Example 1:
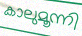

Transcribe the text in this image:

കാലുമൂന്നി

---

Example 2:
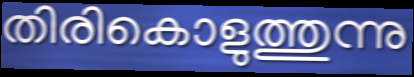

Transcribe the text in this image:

തിരികൊളുത്തുന്നു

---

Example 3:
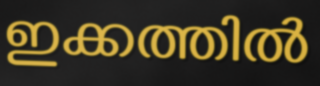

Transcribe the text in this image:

ഇക്കത്തിൽ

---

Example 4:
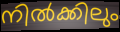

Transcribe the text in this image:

നിൽക്കിലും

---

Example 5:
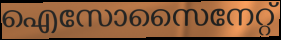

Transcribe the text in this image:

ഐസോസൈനേറ്റ്